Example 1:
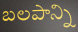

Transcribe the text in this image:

బలపాన్ని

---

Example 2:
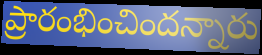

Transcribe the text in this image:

ప్రారంభించిందన్నారు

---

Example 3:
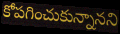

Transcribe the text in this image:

కోపగించుకున్నానని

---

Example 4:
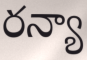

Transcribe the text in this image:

రన్యా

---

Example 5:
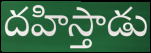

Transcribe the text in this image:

దహిస్తాడు